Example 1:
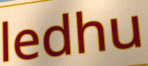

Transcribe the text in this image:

ledhu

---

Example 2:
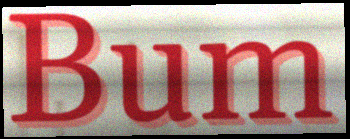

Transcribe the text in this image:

Bum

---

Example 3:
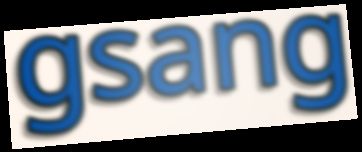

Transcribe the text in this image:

gsang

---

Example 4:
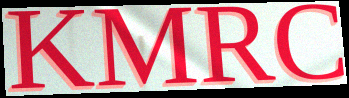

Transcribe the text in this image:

KMRC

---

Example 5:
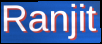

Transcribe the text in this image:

Ranjit